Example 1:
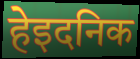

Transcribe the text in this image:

हेइदनिक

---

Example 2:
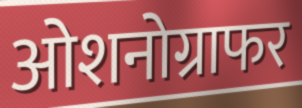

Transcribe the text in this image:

ओशनोग्राफर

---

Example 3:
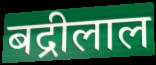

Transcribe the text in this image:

बद्रीलाल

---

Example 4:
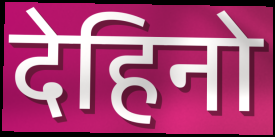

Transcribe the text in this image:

देहिनो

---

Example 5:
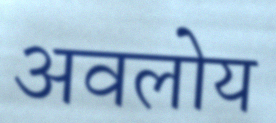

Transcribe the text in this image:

अवलोय